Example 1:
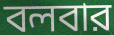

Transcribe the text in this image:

বলবার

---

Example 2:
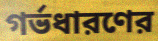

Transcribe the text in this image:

গর্ভধারণের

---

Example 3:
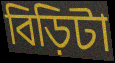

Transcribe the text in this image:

বিড়িটা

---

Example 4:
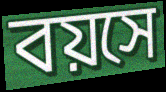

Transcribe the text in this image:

বয়সে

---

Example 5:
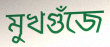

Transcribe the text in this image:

মুখগুঁজে